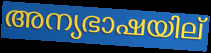
അന്യഭാഷയില്